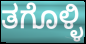
ತಗೊಳ್ಳಿ